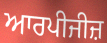
ਆਰਪੀਜੀਜ਼